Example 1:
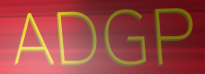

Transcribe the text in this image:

ADGP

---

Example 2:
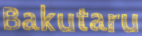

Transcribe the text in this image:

Bakutaru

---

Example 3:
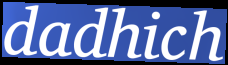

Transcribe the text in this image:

dadhich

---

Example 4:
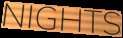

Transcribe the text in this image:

NIGHTS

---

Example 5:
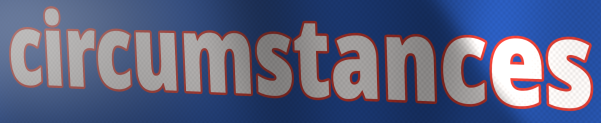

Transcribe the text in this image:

circumstances